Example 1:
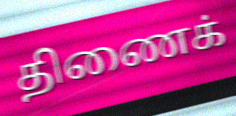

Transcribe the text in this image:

திணைக்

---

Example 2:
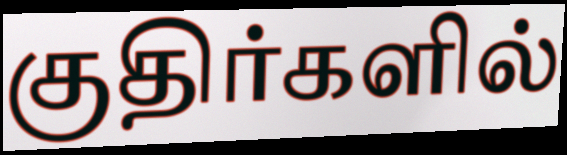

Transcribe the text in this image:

குதிர்களில்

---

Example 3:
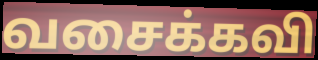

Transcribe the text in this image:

வசைக்கவி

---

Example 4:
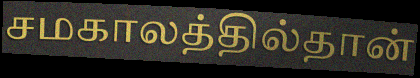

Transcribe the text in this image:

சமகாலத்தில்தான்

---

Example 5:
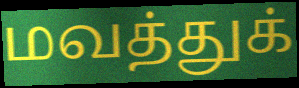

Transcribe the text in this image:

மவத்துக்